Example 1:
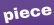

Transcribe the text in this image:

piece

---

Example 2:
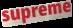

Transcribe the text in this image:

supreme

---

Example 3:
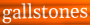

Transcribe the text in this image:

gallstones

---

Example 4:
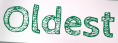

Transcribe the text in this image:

Oldest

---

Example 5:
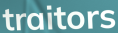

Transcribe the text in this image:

traitors